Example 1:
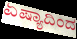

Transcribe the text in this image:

ಏಷ್ಯಾದಿಂದ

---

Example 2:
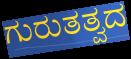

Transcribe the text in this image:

ಗುರುತತ್ವದ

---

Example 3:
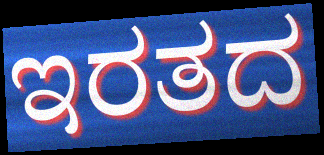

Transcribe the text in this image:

ಇರತದ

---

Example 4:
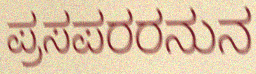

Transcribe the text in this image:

ಪ್ರಸಪರರನುನ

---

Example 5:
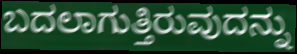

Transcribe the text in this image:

ಬದಲಾಗುತ್ತಿರುವುದನ್ನು